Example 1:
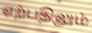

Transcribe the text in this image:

ஏற்பதிலும்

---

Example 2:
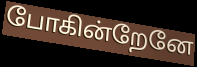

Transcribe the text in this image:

போகின்றேனே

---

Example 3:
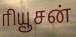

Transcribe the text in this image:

ரியூசன்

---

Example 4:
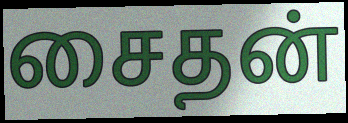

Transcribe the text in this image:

சைதன்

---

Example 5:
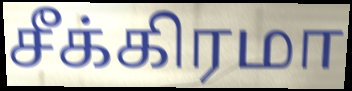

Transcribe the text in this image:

சீக்கிரமா